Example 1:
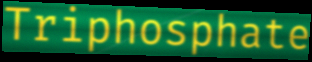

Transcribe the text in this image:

Triphosphate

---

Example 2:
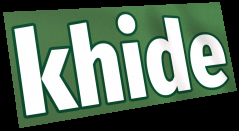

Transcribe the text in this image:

khide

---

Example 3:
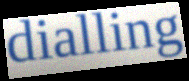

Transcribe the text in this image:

dialling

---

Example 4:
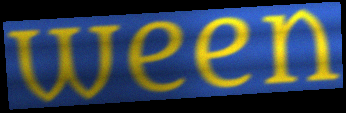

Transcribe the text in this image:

ween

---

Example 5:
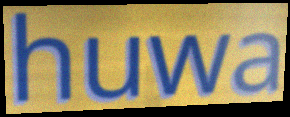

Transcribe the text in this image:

huwa